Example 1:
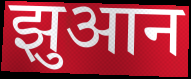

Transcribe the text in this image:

झुआन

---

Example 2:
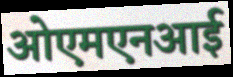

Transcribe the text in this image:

ओएमएनआई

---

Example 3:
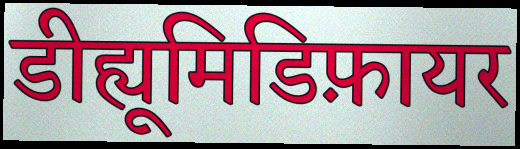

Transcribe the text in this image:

डीह्यूमिडिफ़ायर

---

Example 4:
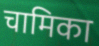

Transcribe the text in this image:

चामिका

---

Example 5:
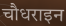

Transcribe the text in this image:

चौधराइन